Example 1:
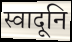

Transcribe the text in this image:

स्वादूनि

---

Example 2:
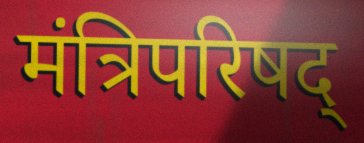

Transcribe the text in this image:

मंत्रिपरिषद्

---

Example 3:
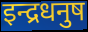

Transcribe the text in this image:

इन्‍द्रधनुष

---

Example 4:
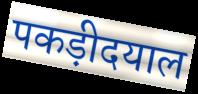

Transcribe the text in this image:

पकड़ीदयाल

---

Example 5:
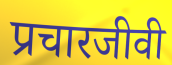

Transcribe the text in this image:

प्रचारजीवी